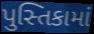
પુસ્તિકામાં